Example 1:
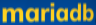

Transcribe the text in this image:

mariadb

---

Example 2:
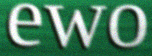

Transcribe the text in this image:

ewo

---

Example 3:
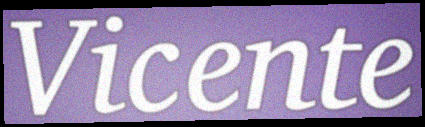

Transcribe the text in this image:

Vicente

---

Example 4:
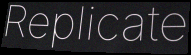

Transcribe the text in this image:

Replicate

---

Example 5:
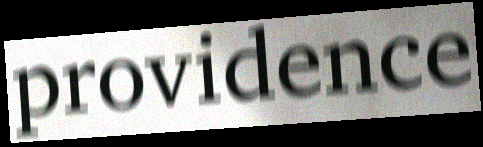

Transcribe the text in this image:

providence